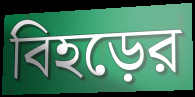
বিহড়ের